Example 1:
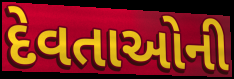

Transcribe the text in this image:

દેવતાઓની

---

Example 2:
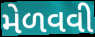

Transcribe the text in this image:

મેળવવી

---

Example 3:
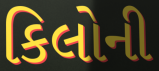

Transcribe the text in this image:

કિલોની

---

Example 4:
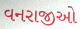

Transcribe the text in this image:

વનરાજીઓ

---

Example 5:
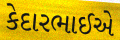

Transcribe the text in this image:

કેદારભાઈએ